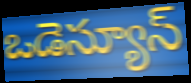
ఒడెస్యూస్